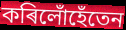
কৰিলোঁহেঁতেন